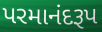
પરમાનંદરૂપ